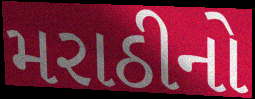
મરાઠીનો